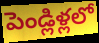
పెండ్లిళ్లలో